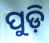
ପୁଡ଼ି